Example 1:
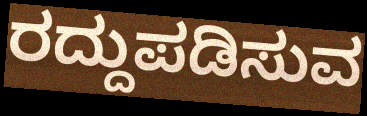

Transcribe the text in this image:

ರದ್ದುಪಡಿಸುವ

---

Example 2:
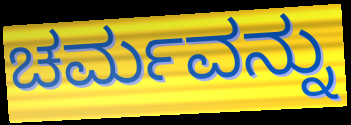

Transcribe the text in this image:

ಚರ್ಮವನ್ನು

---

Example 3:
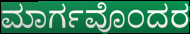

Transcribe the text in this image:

ಮಾರ್ಗವೊಂದರ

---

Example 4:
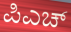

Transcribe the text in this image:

ಪಿಎಚ್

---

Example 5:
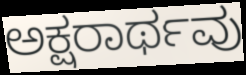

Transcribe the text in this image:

ಅಕ್ಷರಾರ್ಥವು